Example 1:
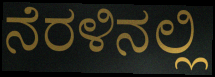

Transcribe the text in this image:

ನೆರಳಿನಲ್ಲಿ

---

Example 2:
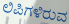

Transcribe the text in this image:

ಲಿಪಿಗಳಿರುವ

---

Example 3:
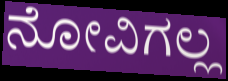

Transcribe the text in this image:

ನೋವಿಗಲ್ಲ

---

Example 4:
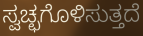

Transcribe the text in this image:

ಸ್ವಚ್ಛಗೊಳಿಸುತ್ತದೆ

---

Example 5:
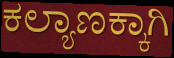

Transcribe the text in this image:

ಕಲ್ಯಾಣಕ್ಕಾಗಿ